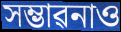
সম্ভাৱনাও